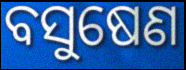
ବସୁଷେଣ